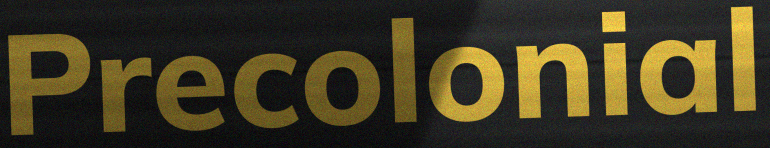
Precolonial